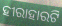
ହୀରାହାରଟି